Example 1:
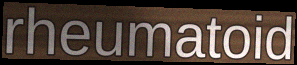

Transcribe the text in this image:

rheumatoid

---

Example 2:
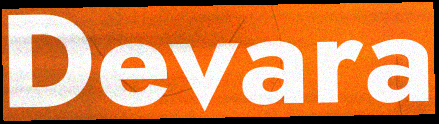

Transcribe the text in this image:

Devara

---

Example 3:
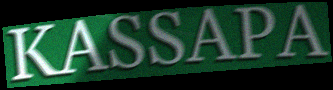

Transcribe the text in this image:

KASSAPA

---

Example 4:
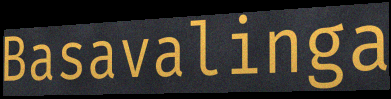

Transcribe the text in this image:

Basavalinga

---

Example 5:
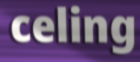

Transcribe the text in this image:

celing